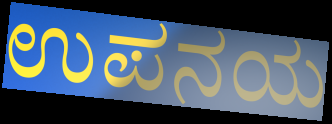
ಉಪನಯ